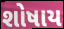
શોષાય